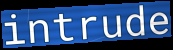
intrude